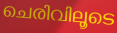
ചെരിവിലൂടെ